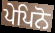
ਪੇਪਿਨੋ